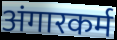
अंगारकर्म